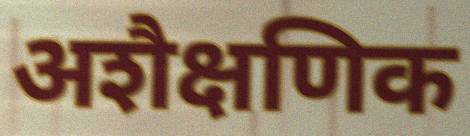
अशैक्षणिक